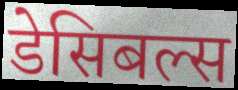
डेसिबल्स